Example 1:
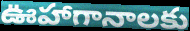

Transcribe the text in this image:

ఊహాగానాలకు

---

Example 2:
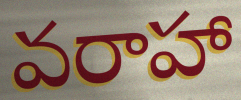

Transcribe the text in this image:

వరాహా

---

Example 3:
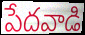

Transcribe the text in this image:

పేదవాడి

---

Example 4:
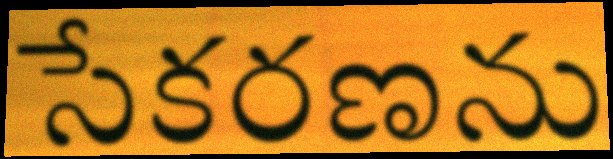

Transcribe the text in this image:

సేకరణను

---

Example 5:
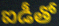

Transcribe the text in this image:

ఐడీతో